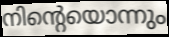
നിന്റെയൊന്നും